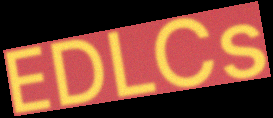
EDLCs